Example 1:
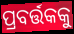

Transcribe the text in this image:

ପ୍ରବର୍ତ୍ତକକୁ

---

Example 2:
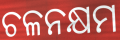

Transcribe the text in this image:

ଚଳନକ୍ଷମ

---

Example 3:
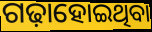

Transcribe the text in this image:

ଗଢ଼ାହୋଇଥିବା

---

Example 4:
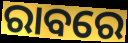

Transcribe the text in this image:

ରାବରେ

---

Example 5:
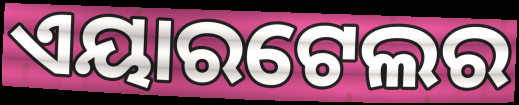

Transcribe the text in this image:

ଏୟାରଟେଲର